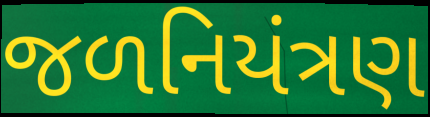
જળનિયંત્રણ